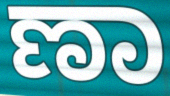
ಣಾ